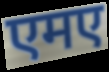
एमए